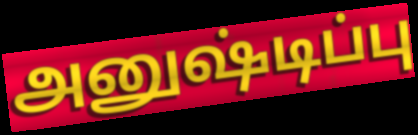
அனுஷ்டிப்பு